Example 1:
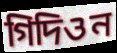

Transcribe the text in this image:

গিদিওন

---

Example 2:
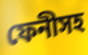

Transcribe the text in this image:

ফেনীসহ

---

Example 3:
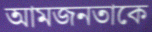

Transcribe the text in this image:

আমজনতাকে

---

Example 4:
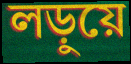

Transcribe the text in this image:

লড়ুয়ে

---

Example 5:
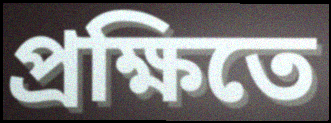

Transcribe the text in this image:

প্রক্ষিতে